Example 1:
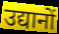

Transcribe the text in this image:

उद्यानों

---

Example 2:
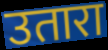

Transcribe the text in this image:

उतारा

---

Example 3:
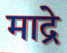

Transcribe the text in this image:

माद्रे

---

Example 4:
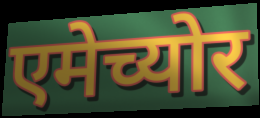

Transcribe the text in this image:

एमेच्योर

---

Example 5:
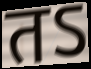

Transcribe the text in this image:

तऽ